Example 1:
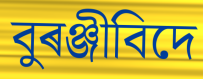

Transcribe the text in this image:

বুৰঞ্জীবিদে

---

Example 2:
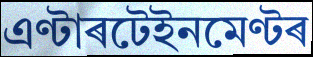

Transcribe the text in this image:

এণ্টাৰটেইনমেণ্টৰ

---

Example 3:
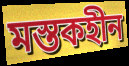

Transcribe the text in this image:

মস্তকহীন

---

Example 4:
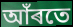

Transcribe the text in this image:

আঁৰতে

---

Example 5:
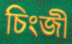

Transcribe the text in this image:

চিংজী